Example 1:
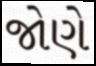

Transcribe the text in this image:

જોણે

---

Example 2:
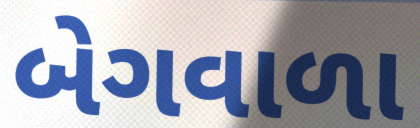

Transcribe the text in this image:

બેગવાળા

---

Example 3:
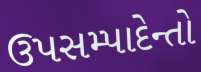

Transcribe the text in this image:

ઉપસમ્પાદેન્તો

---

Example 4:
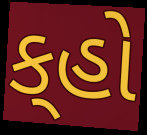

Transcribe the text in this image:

ક્‌હો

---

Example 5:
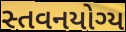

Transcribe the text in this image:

સ્તવનયોગ્ય